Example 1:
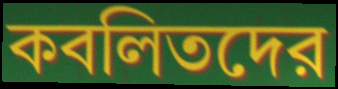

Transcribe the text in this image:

কবলিতদের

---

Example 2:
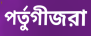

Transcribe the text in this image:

পর্তুগীজরা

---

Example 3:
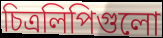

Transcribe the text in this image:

চিত্রলিপিগুলো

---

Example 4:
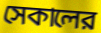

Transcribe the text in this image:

সেকালের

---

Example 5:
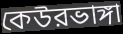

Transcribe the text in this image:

কেউরভাঙ্গা